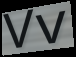
Vv